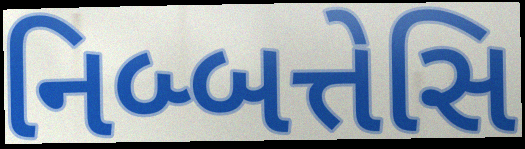
નિબ્બત્તેસિ